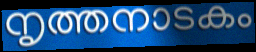
നൃത്തനാടകം